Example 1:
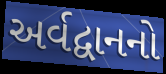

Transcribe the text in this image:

અર્વદ્વાનનો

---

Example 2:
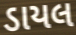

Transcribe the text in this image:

ડાયલ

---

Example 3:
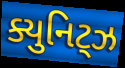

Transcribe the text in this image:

ક્યુનિટ્ઝ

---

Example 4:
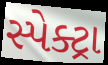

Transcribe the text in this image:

સ્પેક્ટ્રા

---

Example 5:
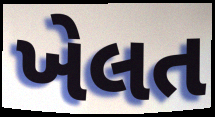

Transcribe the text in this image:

ખેલત